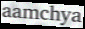
aamchya